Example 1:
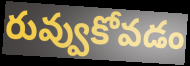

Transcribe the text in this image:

రువ్వుకోవడం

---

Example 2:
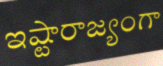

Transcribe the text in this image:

ఇష్టారాజ్యంగా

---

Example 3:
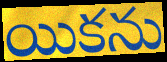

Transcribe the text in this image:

యికను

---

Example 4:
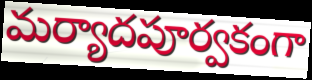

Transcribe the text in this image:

మర్యాదపూర్వకంగా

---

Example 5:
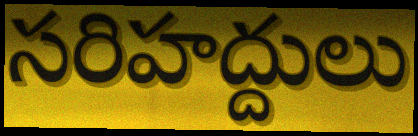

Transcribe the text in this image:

సరిహద్దులు